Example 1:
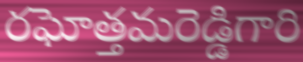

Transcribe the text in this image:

రఘోత్తమరెడ్డిగారి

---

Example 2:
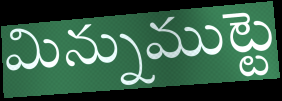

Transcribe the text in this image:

మిన్నుముట్టె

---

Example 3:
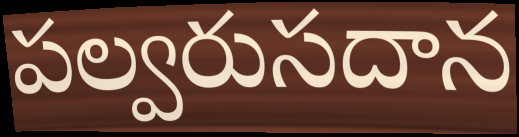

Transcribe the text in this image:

పల్వరుసదాన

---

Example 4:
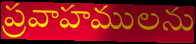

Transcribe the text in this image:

ప్రవాహములను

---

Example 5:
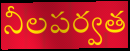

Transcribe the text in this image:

నీలపర్వత